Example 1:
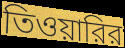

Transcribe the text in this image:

তিওয়ারির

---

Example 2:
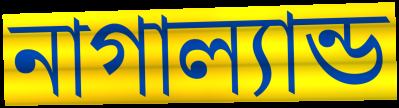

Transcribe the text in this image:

নাগাল্যান্ড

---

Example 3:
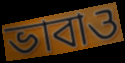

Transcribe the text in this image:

ভাবাও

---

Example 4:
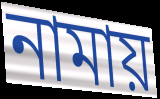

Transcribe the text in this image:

নামায়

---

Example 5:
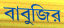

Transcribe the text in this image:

বাবুজির